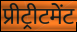
प्रीट्रीटमेंट